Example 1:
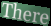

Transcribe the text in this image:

There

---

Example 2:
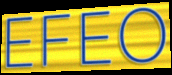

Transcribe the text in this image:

EFEO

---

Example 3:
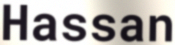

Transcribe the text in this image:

Hassan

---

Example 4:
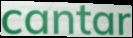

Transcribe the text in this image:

cantar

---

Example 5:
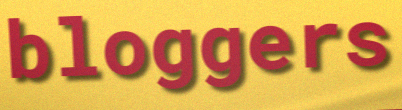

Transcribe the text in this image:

bloggers